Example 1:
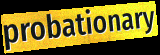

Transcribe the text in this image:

probationary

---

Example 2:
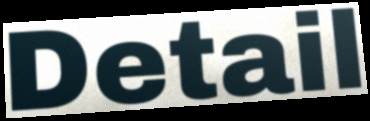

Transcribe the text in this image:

Detail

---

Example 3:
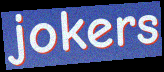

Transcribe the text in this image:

jokers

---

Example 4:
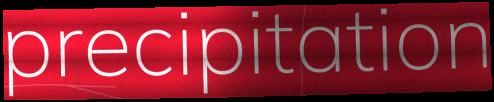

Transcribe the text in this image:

precipitation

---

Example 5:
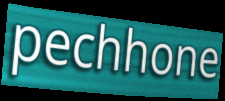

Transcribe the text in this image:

pechhone